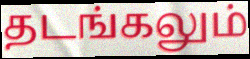
தடங்கலும்